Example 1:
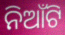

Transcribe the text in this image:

ନିଆଁଟି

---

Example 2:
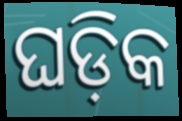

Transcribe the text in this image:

ଘଡ଼ିକ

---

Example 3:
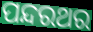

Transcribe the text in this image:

ପନ୍ଦରଥର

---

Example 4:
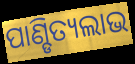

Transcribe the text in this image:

ପାଣ୍ଡିତ୍ୟଲାଭ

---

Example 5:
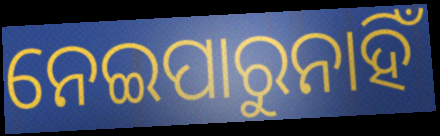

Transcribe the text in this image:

ନେଇପାରୁନାହିଁ